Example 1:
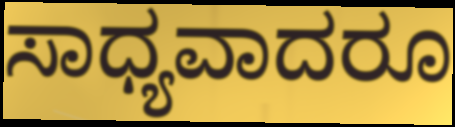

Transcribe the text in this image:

ಸಾಧ್ಯವಾದರೂ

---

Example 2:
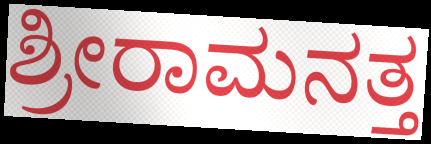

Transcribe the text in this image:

ಶ್ರೀರಾಮನತ್ತ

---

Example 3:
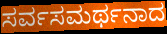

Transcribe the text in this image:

ಸರ್ವಸಮರ್ಥನಾದ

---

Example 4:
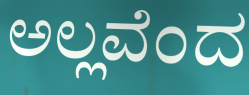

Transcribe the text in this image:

ಅಲ್ಲವೆಂದ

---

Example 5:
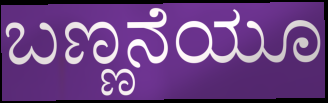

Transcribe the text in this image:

ಬಣ್ಣನೆಯೂ